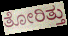
ತೋರಿತ್ತು